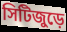
সিটিজুড়ে